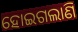
ହୋଇଗଲାଣି